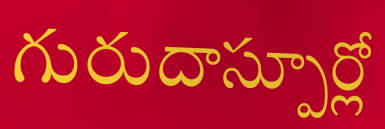
గురుదాస్పూర్లో